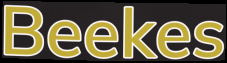
Beekes